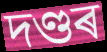
দণ্ডৰ